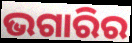
ଭଗାରିର